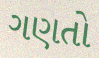
ગણતો